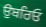
ਉਬਰਿਓ